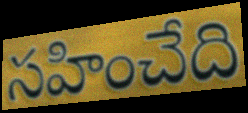
సహించేది